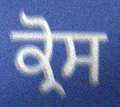
ਕ੍ਰੋਸ